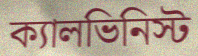
ক্যালভিনিস্ট